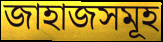
জাহাজসমূহ